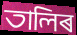
তালিৰ